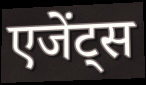
एजेंट्स